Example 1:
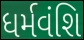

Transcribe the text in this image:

ધર્મવંશિ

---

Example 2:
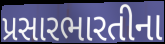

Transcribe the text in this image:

પ્રસારભારતીના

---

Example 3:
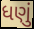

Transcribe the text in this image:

ધણું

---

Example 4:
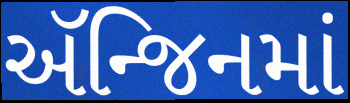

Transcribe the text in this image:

ઍન્જિનમાં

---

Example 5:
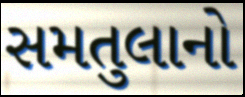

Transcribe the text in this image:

સમતુલાનો